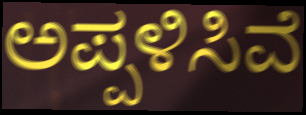
ಅಪ್ಪಳಿಸಿವೆ